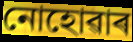
নোহোৱাৰ